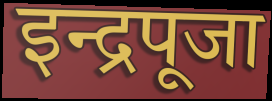
इन्द्रपूजा